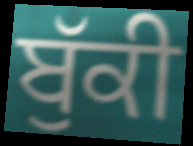
ਬੁੱਕੀ